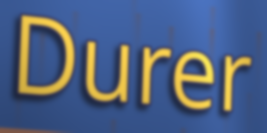
Durer